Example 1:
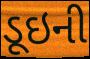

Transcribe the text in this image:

ડૂઇની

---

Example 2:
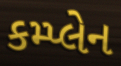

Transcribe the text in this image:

કમ્પ્લેન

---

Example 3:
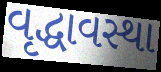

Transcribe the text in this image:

વૃદ્ધાવસ્થા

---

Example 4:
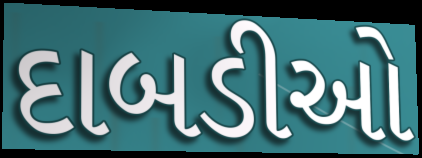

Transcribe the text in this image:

દાબડીઓ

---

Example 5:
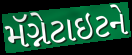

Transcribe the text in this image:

મૅગ્નેટાઇટને